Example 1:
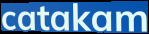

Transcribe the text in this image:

catakam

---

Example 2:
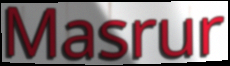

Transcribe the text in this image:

Masrur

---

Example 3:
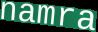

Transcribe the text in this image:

namra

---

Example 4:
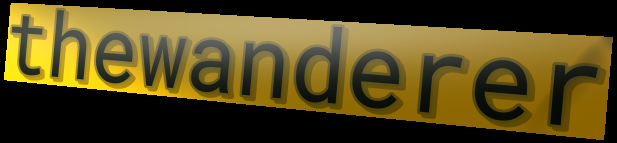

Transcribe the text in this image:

thewanderer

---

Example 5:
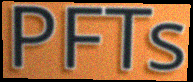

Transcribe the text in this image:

PFTs